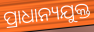
ପ୍ରାଧାନ୍ୟଯୁକ୍ତ